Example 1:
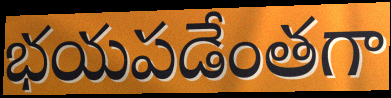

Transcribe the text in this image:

భయపడేంతగా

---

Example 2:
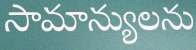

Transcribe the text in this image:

సామాన్యులను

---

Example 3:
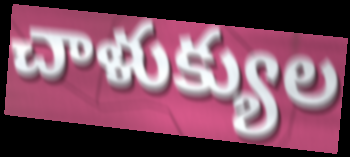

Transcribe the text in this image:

చాళుక్యుల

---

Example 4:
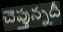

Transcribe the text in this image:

చెప్తున్నదీ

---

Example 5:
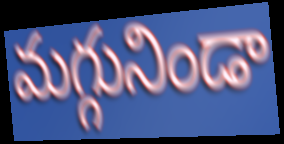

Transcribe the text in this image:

మగ్గునిండా